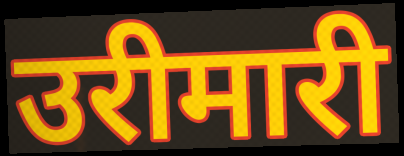
उरीमारी